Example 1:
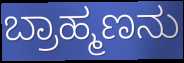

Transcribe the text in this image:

ಬ್ರಾಹ್ಮಣನು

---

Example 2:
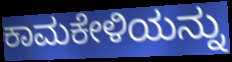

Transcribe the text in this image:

ಕಾಮಕೇಳಿಯನ್ನು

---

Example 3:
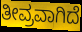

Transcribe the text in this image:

ತೀವ್ರವಾಗಿದೆ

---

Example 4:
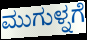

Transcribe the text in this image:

ಮುಗುಳ್ನಗೆ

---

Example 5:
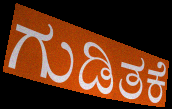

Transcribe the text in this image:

ಗುಡಿತಕೆ